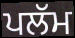
ਪਲੱਮ